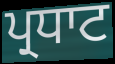
ਪ੍ਰਧਾਟ